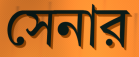
সেনার